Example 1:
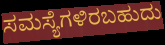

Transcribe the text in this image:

ಸಮಸ್ಯೆಗಳಿರಬಹುದು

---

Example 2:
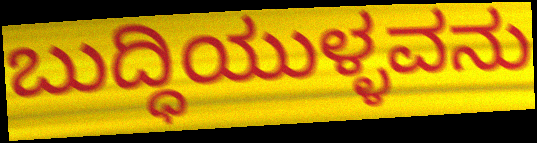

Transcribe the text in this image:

ಬುದ್ಧಿಯುಳ್ಳವನು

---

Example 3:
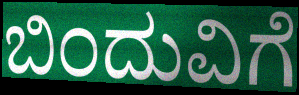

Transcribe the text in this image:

ಬಿಂದುವಿಗೆ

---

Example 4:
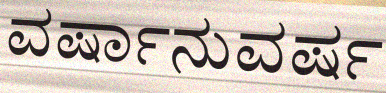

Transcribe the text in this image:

ವರ್ಷಾನುವರ್ಷ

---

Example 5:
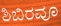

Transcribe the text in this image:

ಶಿಬಿರವೂ